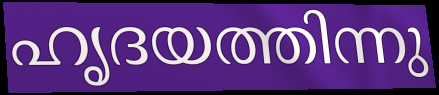
ഹൃദയത്തിന്നു